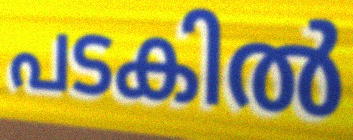
പടകിൽ